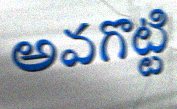
అవగొట్టి